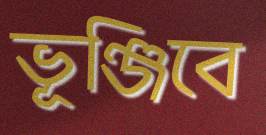
ভূঞ্জিবে